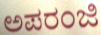
ಅಪರಂಜಿ